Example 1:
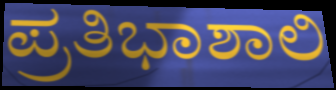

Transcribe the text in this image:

ಪ್ರತಿಭಾಶಾಲಿ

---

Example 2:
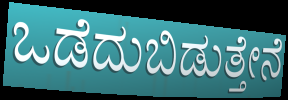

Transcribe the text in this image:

ಒಡೆದುಬಿಡುತ್ತೇನೆ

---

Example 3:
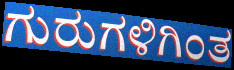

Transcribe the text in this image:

ಗುರುಗಳಿಗಿಂತ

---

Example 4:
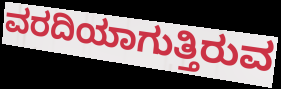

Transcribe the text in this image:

ವರದಿಯಾಗುತ್ತಿರುವ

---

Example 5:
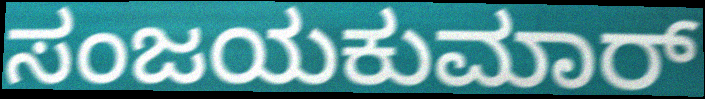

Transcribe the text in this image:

ಸಂಜಯಕುಮಾರ್